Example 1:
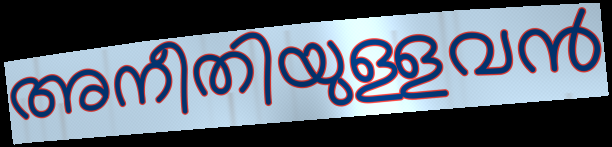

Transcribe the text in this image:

അനീതിയുള്ളവൻ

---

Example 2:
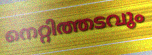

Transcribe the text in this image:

നെറ്റിത്തടവും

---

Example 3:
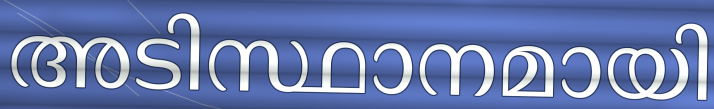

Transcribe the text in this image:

അടിസ്ഥാനമായി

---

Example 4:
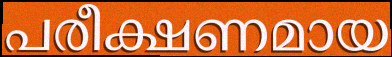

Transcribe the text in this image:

പരീക്ഷണമായ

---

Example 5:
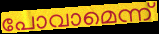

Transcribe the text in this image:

പോവാമെന്ന്